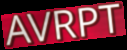
AVRPT